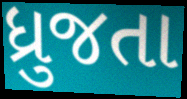
ધ્રુજતા